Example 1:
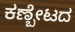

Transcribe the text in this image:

ಕಣ್ಬೇಟದ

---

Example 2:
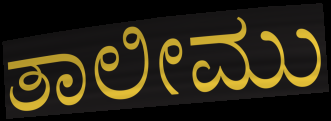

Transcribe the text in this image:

ತಾಲೀಮು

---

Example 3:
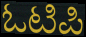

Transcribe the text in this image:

ಓಟಿಪಿ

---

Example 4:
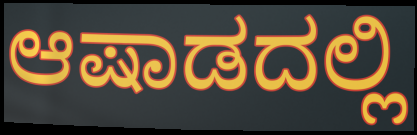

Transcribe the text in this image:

ಆಷಾಡದಲ್ಲಿ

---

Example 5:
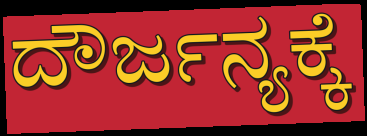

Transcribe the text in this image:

ದೌರ್ಜನ್ಯಕ್ಕೆ